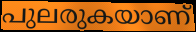
പുലരുകയാണ്